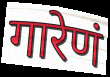
गारेणं